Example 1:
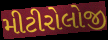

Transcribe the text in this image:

મીટીરોલોજી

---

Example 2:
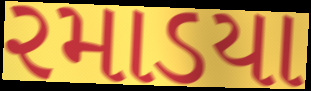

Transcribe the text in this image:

રમાડયા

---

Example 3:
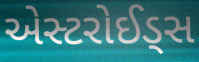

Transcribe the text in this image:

એસ્ટરોઈડ્સ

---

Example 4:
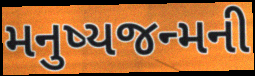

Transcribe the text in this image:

મનુષ્યજન્મની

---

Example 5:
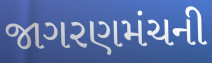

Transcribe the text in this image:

જાગરણમંચની